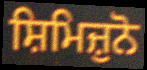
ਸ਼ਿਮਿਜ਼ੁਨੋ